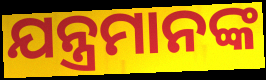
ଯନ୍ତ୍ରମାନଙ୍କ